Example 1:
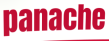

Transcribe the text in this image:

panache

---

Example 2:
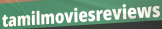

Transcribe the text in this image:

tamilmoviesreviews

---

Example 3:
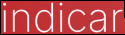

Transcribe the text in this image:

indicar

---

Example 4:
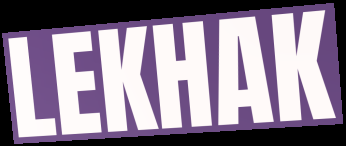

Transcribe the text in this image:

LEKHAK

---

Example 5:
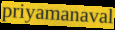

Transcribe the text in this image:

priyamanaval